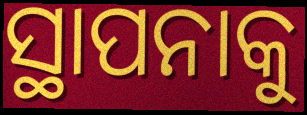
ସ୍ଥାପନାକୁ